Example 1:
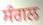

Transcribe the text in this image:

ਸੰਗਲ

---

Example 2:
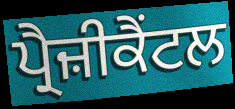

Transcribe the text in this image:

ਪ੍ਰੈਜ਼ੀਕੈਂਟਲ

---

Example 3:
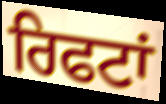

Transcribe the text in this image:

ਰਿਫਟਾਂ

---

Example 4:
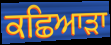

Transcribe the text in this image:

ਕਛਿਆੜਾ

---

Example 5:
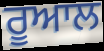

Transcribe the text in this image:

ਰੂਆਲ